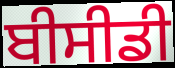
ਬੀਸੀਡੀ